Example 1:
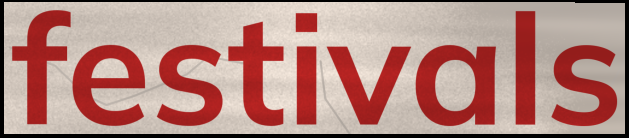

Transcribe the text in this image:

festivals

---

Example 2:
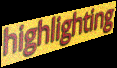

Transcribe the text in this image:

highlighting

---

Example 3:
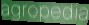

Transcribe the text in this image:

agropedia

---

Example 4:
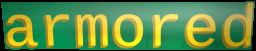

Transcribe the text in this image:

armored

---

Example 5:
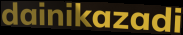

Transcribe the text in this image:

dainikazadi